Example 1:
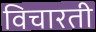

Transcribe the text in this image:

विचारती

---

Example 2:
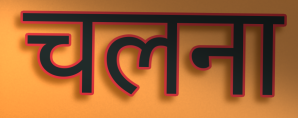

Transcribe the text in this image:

चलना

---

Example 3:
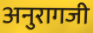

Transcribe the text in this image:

अनुरागजी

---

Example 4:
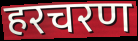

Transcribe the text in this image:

हरचरण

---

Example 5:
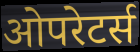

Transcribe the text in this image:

ओपरेटर्स